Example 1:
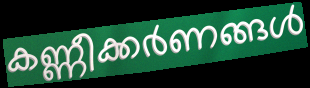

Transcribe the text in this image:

കണ്ണീക്കർണങ്ങൾ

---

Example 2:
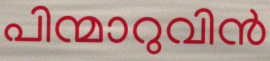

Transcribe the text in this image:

പിന്മാറുവിൻ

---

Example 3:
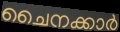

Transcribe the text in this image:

ചൈനക്കാർ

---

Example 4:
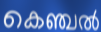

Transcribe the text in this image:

കെഞ്ചൽ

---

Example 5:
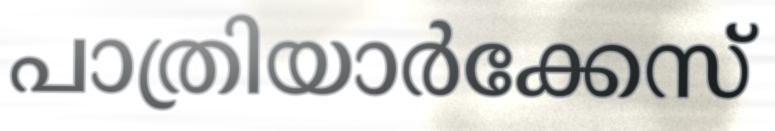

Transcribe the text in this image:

പാത്രിയാർക്കേസ്